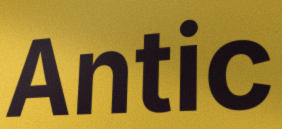
Antic